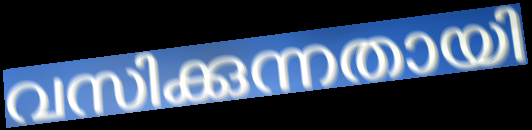
വസിക്കുന്നതായി